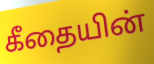
கீதையின்